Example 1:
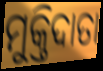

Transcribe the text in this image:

ମୁକ୍ତିଦାତା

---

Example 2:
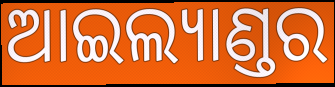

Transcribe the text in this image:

ଆଇଲ୍ୟାଣ୍ଡର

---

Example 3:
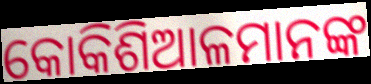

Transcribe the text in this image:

କୋକିଶିଆଳମାନଙ୍କ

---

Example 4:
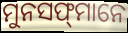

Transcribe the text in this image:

ମୁନସଫ୍‍ମାନେ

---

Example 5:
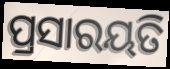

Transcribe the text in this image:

ପ୍ରସାରୟତି